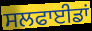
ਸਲਫਾਈਡਾਂ